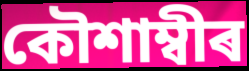
কৌশাম্বীৰ